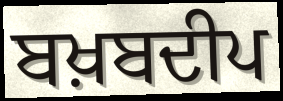
ਬਖ਼ਬਦੀਪ